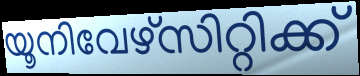
യൂനിവേഴ്സിറ്റിക്ക്